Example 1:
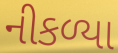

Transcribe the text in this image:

નીકળ્યા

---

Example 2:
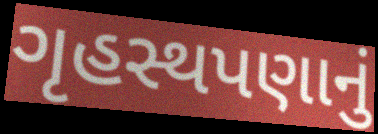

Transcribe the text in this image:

ગૃહસ્થપણાનું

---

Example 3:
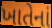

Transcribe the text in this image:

ખાતેનાં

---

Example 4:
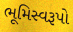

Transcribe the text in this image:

ભૂમિસ્વરૂપો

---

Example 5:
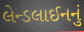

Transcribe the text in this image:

લેન્ડલાઈનનું